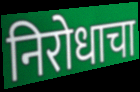
निरोधाचा